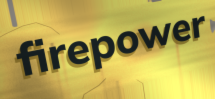
firepower